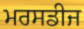
ਮਰਸਡੀਜ